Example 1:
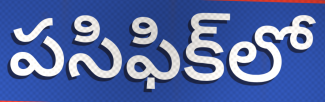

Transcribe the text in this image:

పసిఫిక్‌లో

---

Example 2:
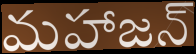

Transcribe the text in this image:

మహాజన్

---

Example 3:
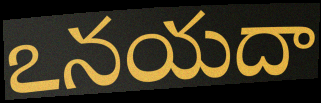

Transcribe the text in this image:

ఽనయదా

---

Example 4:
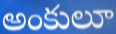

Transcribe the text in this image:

అంకులూ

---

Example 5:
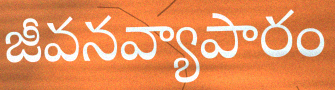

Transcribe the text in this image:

జీవనవ్యాపారం